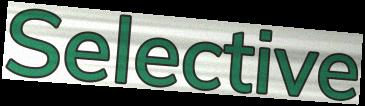
Selective